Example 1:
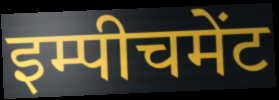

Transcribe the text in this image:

इम्पीचमेंट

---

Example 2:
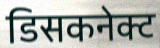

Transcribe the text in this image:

डिसकनेक्ट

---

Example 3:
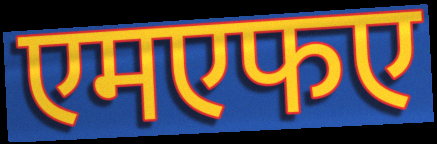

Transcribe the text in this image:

एमएफए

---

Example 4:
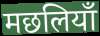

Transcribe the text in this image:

मछलियाँ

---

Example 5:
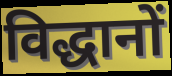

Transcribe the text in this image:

विद्धानों